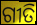
ଗୀତି